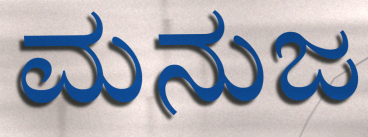
ಮನುಜ